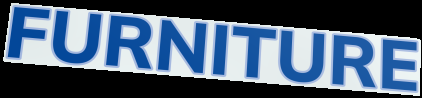
FURNITURE